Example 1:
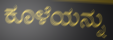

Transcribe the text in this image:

ಕೂಳೆಯನ್ನು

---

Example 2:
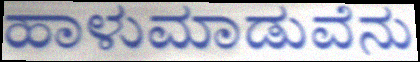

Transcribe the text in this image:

ಹಾಳುಮಾಡುವೆನು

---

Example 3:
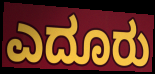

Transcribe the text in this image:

ಎದೂರು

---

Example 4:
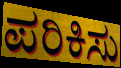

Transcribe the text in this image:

ಪರಿಕಿಸು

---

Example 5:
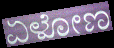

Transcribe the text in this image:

ಏಳೋಣ